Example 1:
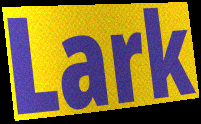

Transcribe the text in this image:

Lark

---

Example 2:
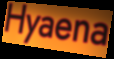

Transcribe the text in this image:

Hyaena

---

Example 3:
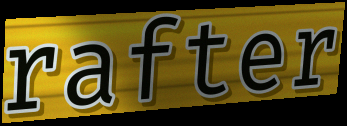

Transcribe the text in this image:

rafter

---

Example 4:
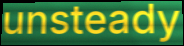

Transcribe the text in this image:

unsteady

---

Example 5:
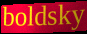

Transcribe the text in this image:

boldsky